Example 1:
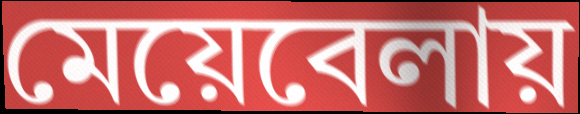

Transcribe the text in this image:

মেয়েবেলায়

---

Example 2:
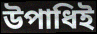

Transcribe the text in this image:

উপাধিই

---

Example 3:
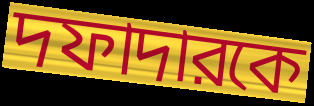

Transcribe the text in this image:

দফাদারকে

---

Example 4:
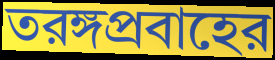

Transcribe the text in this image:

তরঙ্গপ্রবাহের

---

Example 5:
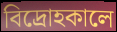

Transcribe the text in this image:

বিদ্রোহকালে